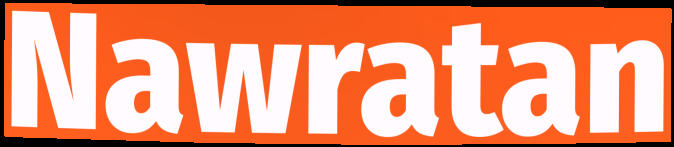
Nawratan